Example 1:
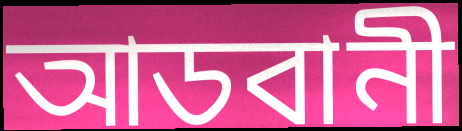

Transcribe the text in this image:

আডবানী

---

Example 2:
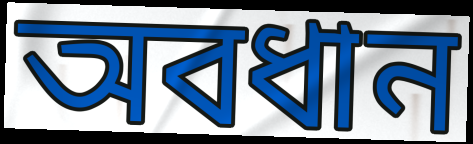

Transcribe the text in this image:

অবধান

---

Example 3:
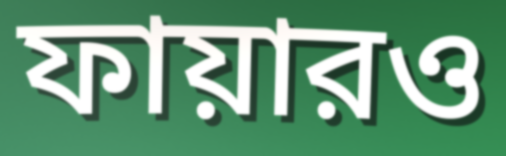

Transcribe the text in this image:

ফায়ারও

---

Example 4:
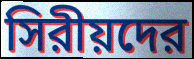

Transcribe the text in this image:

সিরীয়দের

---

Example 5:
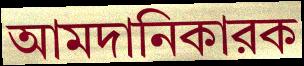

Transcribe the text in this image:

আমদানিকারক